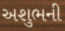
અશુભની